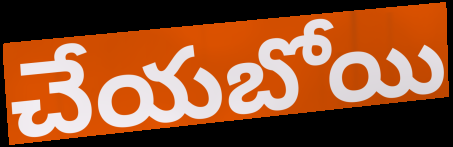
చేయబోయి